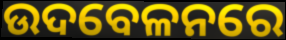
ଉଦବେଳନରେ